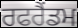
ਰਫਰੈਂਡਮ